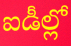
ఐడీల్లో